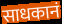
साधकानं